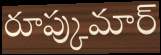
రూప్కుమార్